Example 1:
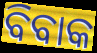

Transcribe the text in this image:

ବିବାକ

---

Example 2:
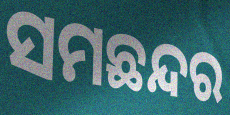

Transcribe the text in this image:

ସମଛନ୍ଦର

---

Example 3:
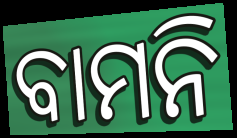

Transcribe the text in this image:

ବାମନି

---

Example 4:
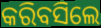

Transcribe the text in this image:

କରିବସିଲେ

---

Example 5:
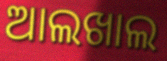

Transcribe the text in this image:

ଆଲଖାଲ